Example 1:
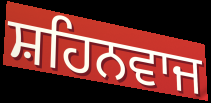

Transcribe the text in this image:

ਸ਼ਹਿਨਵਾਜ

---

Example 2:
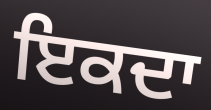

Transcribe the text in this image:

ਇਕਦਾ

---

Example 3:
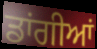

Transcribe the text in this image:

ਡਾਂਗੀਆਂ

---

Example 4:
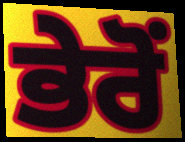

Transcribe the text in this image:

ਭੇਰੋਂ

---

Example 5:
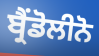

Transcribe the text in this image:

ਬ੍ਰੈਂਡੋਲੀਨੋ